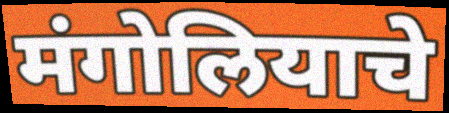
मंगोलियाचे